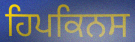
ਹਿਪਕਿਨਸ